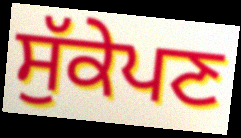
ਸੁੱਕੇਪਣ